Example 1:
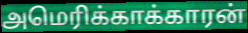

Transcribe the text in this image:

அமெரிக்காக்காரன்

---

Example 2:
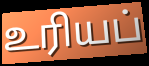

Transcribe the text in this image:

உரியப்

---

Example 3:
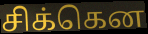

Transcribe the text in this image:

சிக்கென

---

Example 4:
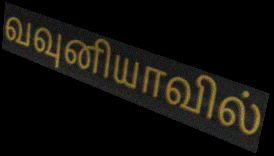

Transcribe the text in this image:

வவுனியாவில்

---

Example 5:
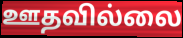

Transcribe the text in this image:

ஊதவில்லை